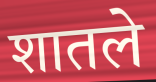
शातले